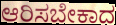
ಆರಿಸಬೇಕಾದ